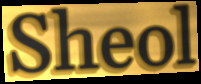
Sheol